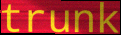
trunk